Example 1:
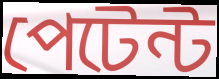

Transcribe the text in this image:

পেটেন্ট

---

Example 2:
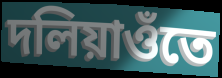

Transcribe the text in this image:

দলিয়াওঁতে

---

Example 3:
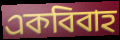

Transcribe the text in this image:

একবিবাহ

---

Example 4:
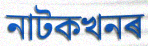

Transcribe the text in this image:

নাটকখনৰ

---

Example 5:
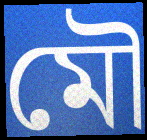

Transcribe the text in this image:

মৌ